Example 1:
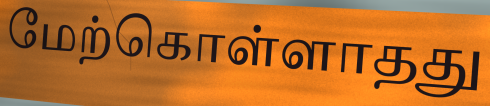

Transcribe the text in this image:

மேற்கொள்ளாதது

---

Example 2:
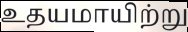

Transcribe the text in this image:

உதயமாயிற்று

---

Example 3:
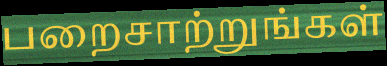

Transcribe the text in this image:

பறைசாற்றுங்கள்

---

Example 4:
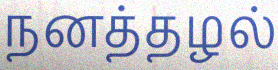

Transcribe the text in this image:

நனத்தழல்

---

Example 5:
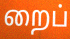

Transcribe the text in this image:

றைப்